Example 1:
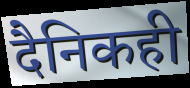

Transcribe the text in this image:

दैनिकही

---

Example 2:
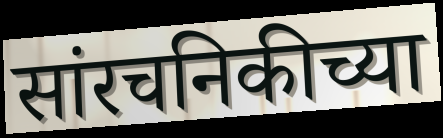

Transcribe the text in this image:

सांरचनिकीच्या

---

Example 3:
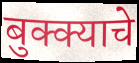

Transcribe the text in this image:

बुक्क्याचे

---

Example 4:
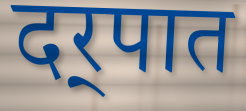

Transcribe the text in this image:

दर्पात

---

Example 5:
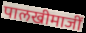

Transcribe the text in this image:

पालखीमाजीं